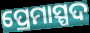
ପ୍ରେମାସ୍ପଦ